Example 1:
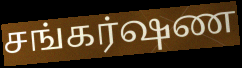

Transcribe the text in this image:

சங்கர்ஷண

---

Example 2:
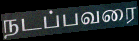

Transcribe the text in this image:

நடப்பவரை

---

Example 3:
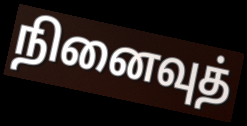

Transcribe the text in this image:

நினைவுத்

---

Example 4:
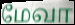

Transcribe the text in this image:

மேவா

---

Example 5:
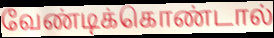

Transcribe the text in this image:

வேண்டிக்கொண்டால்